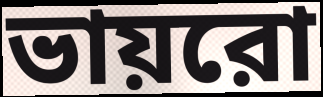
ভায়রো